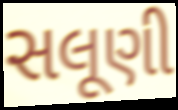
સલૂણી